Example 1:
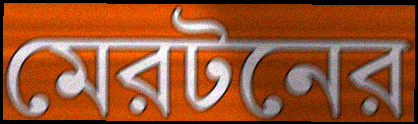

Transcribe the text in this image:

মেরটনের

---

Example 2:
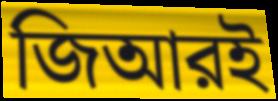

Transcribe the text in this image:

জিআরই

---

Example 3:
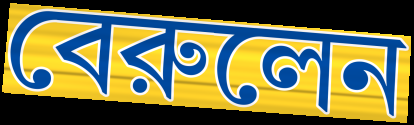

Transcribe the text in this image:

বেরুলেন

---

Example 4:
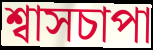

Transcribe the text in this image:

শ্বাসচাপা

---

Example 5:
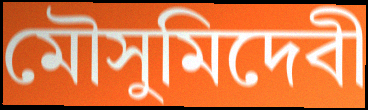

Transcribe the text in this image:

মৌসুমিদেবী